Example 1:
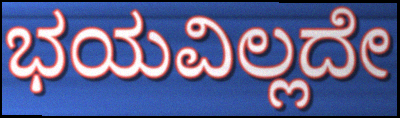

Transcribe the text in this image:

ಭಯವಿಲ್ಲದೇ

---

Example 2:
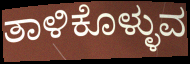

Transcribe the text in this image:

ತಾಳಿಕೊಳ್ಳುವ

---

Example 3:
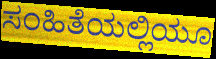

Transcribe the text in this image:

ಸಂಹಿತೆಯಲ್ಲಿಯೂ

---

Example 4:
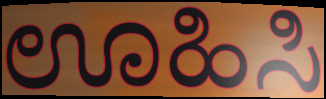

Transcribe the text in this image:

ಊಹಿಸಿ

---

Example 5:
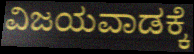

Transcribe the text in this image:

ವಿಜಯವಾಡಕ್ಕೆ